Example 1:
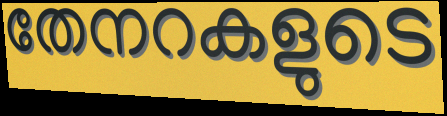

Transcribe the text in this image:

തേനറകളുടെ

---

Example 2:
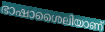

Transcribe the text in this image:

ഭാഷാശൈലിയാണ്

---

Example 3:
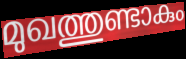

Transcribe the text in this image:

മുഖത്തുണ്ടാകും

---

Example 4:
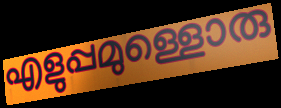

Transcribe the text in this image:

എളുപ്പമുള്ളൊരു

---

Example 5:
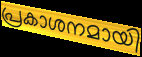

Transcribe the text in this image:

പ്രകാശനമായി